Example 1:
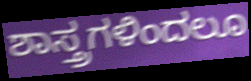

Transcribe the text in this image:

ಶಾಸ್ತ್ರಗಳಿಂದಲೂ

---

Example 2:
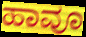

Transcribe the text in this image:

ಹಾವೂ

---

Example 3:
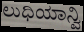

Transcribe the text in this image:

ಲುಧಿಯಾನ್ವಿ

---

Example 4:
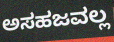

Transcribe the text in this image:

ಅಸಹಜವಲ್ಲ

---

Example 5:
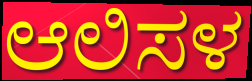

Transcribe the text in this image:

ಆಲಿಸಳ